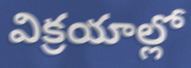
విక్రయాల్లో